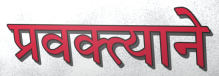
प्रवक्‍त्याने